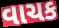
વાચક